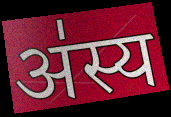
अ॑स्य